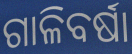
ଗାଳିବର୍ଷା